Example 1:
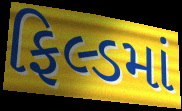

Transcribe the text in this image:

ફિલ્ડમાં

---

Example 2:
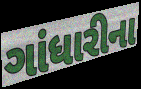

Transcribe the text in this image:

ગાંધારીના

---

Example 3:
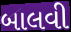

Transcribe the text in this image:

બાલવી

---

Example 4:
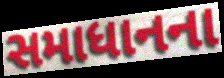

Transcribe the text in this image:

સમાધાનના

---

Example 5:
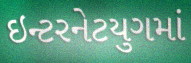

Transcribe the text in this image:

ઇન્ટરનેટયુગમાં